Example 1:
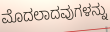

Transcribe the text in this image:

ಮೊದಲಾದವುಗಳನ್ನು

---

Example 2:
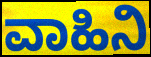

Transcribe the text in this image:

ವಾಹಿನಿ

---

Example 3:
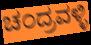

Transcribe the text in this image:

ಚಂದ್ರವಳ್ಳಿ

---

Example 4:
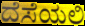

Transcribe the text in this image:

ದೆಸೆಯಲಿ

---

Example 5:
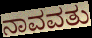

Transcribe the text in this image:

ನಾವವತು